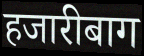
हजारीबाग